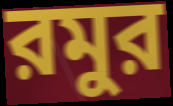
রমুর